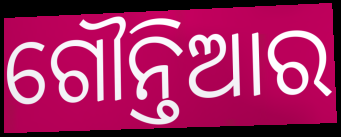
ଗୌନ୍ତିଆର